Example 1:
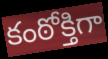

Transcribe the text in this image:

కంఠోక్తిగా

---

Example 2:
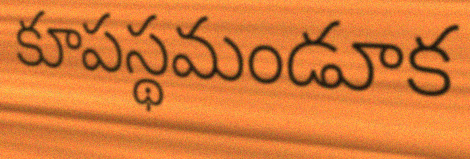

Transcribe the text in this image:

కూపస్థమండూక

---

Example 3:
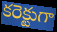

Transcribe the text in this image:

కరెక్టుగా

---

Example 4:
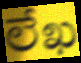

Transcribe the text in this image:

లేఖ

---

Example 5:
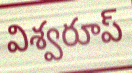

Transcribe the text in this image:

విశ్వరూప్